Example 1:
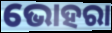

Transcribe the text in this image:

ଭୋହରା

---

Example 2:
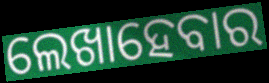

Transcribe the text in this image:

ଲେଖାହେବାର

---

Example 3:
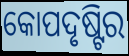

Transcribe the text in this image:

କୋପଦୃଷ୍ଟିର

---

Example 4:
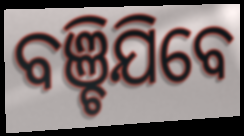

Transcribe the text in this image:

ବଞ୍ଚିଯିବେ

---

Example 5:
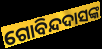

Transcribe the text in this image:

ଗୋବିନ୍ଦଦାସଙ୍କ